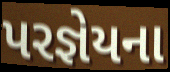
પરજ્ઞેયના